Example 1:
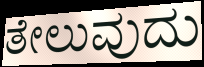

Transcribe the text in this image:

ತೇಲುವುದು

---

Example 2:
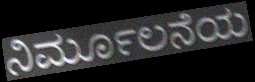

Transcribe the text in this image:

ನಿರ್ಮೂಲನೆಯ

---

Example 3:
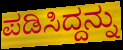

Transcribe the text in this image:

ಪಡಿಸಿದ್ದನ್ನು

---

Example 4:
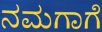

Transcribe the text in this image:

ನಮಗಾಗೆ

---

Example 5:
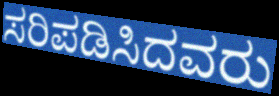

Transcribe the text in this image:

ಸರಿಪಡಿಸಿದವರು